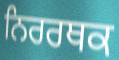
ਨਿਰਰਥਕ